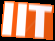
IIT